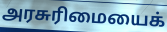
அரசுரிமையைக்